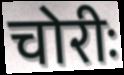
चोरीः